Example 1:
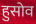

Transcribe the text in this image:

हुसोव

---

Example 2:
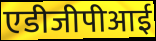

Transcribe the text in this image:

एडीजीपीआई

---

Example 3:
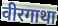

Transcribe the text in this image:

वीरगाथा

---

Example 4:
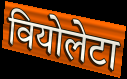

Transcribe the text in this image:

वियोलेटा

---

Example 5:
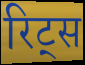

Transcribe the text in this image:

रिट्स